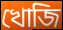
খোজি